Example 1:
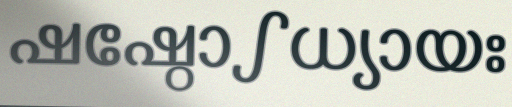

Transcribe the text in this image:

ഷഷ്ഠോഽധ്യായഃ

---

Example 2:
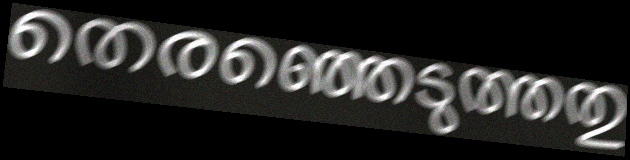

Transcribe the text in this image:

തെരഞ്ഞെടുത്തതു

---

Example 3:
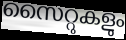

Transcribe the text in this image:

സൈറ്റുകളും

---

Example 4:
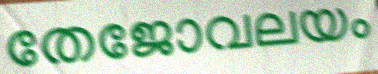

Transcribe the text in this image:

തേജോവലയം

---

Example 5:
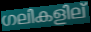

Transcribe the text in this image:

ഗലികളില്